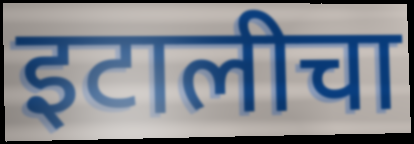
इटालीचा